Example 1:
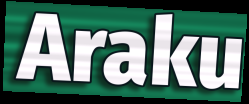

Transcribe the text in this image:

Araku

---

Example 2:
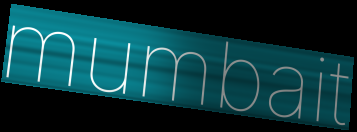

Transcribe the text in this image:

mumbait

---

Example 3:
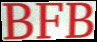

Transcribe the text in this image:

BFB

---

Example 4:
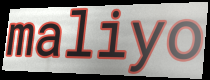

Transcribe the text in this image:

maliyo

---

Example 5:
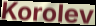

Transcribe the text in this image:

Korolev